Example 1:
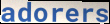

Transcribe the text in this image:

adorers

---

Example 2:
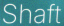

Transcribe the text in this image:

Shaft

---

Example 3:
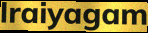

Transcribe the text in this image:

Iraiyagam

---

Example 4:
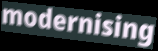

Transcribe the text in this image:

modernising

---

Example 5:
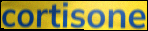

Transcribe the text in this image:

cortisone